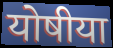
योषीया